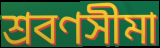
শ্রবণসীমা